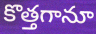
కొత్తగానూ